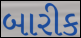
બારીક